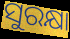
ସୁରକ୍ଷା